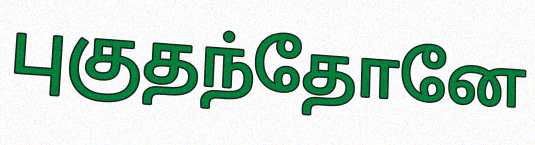
புகுதந்தோனே